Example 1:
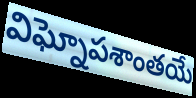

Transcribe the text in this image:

విఘ్నోపశాంతయే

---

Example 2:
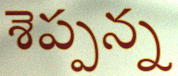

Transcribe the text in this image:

శెప్పన్న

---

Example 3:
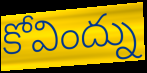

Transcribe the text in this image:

కోవింద్ను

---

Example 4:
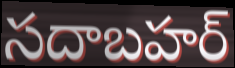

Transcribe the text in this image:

సదాబహర్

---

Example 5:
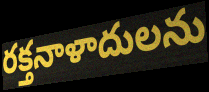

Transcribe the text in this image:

రక్తనాళాదులను